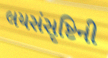
લયસંસૃષ્ટિની